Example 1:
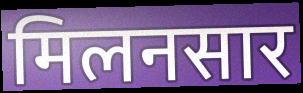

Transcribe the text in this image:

मिलनसार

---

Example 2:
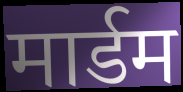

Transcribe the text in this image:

मार्डम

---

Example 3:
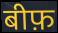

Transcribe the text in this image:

बीफ़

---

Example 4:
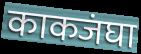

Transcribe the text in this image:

काकजंघा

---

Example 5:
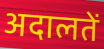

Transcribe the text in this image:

अदालतें